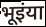
भूइंया